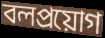
বলপ্ৰয়োগ